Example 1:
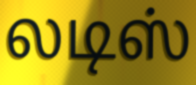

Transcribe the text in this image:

லடிஸ்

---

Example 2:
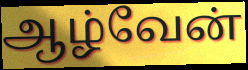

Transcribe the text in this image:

ஆழ்வேன்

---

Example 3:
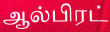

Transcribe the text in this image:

ஆல்பிரட்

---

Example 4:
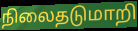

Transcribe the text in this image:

நிலைதடுமாறி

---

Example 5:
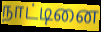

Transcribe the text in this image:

நாட்டினை